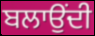
ਬਲਾਉਂਦੀ